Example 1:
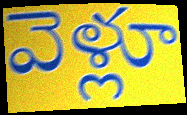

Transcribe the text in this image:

వెళ్లూ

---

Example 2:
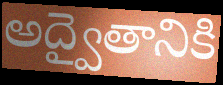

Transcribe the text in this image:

అద్వైతానికి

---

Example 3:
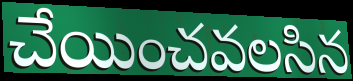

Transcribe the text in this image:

చేయించవలసిన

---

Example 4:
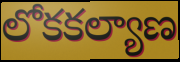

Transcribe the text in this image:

లోకకల్యాణ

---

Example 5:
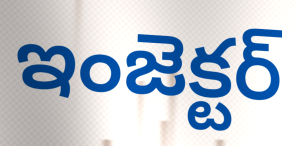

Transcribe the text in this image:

ఇంజెక్టర్